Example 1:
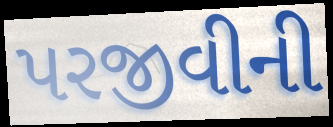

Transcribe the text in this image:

પરજીવીની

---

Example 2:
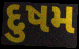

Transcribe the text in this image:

દુષમ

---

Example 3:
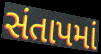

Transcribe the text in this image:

સંતાપમાં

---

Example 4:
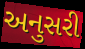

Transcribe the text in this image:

અનુસરી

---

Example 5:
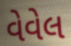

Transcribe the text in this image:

વેવેલ